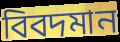
বিবদমান